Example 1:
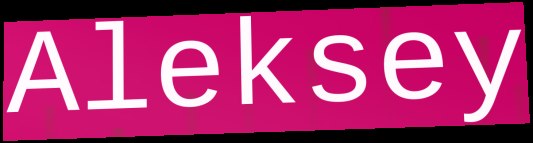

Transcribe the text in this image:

Aleksey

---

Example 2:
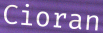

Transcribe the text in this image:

Cioran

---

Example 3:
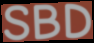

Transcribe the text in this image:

SBD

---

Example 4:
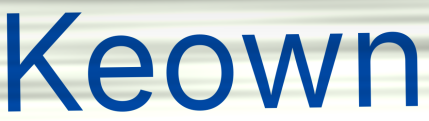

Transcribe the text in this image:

Keown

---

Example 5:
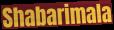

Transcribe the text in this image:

Shabarimala